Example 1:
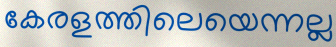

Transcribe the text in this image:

കേരളത്തിലെയെന്നല്ല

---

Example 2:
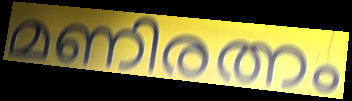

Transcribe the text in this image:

മണിരത്നം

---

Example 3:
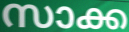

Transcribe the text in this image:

സാക്ക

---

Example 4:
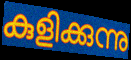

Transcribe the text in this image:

കുളിക്കുന്നു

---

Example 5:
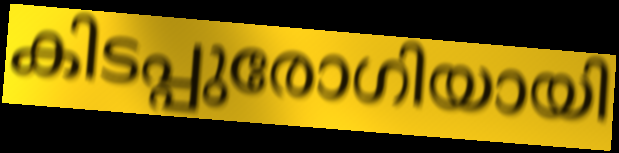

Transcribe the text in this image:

കിടപ്പുരോഗിയായി